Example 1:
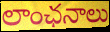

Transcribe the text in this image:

లాంఛనాలు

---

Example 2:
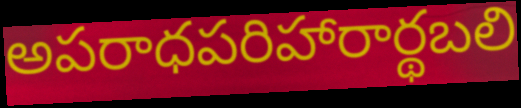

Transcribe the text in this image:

అపరాధపరిహారార్థబలి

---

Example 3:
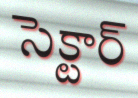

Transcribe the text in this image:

సెక్టార్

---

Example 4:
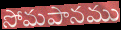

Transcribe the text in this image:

సోమపానము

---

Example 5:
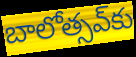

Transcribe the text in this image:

బాలోత్సవ్‌కు